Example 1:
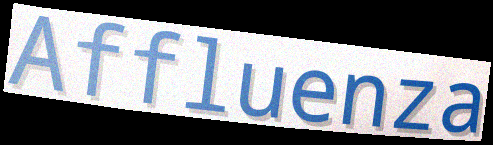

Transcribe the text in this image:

Affluenza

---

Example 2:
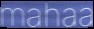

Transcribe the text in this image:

mahaa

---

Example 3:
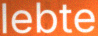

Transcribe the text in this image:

lebte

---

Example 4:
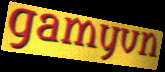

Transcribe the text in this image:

gamyun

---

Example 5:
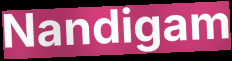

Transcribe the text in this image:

Nandigam